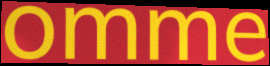
omme